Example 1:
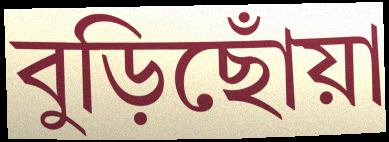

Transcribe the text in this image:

বুড়িছোঁয়া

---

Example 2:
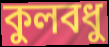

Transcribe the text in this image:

কুলবধু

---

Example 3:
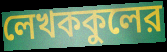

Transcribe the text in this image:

লেখককুলের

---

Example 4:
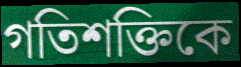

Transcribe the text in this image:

গতিশক্তিকে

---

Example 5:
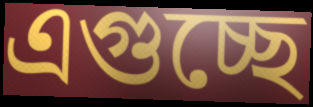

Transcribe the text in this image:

এগুচ্ছে